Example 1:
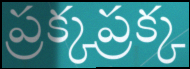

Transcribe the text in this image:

ప్రక్కప్రక్క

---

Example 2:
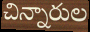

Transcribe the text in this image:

చిన్నారుల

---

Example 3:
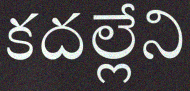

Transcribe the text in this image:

కదల్లేని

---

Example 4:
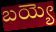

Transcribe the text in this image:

బయ్యె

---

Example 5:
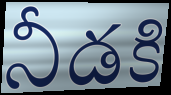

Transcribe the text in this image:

నీడకి